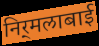
निर्मलाबाई